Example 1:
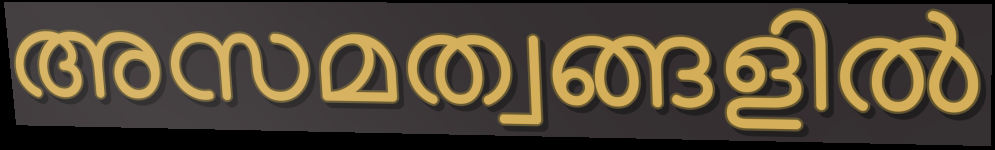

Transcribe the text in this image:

അസമത്വങ്ങളിൽ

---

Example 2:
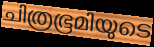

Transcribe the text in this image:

ചിത്രഭൂമിയുടെ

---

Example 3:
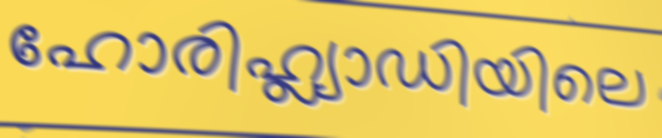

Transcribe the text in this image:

ഹോരിഹ്ല്യാഡിയിലെ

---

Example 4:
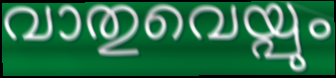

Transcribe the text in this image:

വാതുവെയ്പും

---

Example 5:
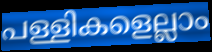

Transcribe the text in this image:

പള്ളികളെല്ലാം